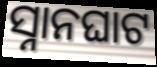
ସ୍ନାନଘାଟ